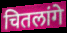
चितलांगे